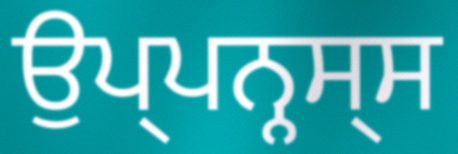
ਉਪ੍ਪਨ੍ਨਸ੍ਸ